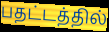
பதட்டத்தில்